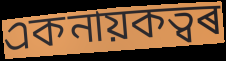
একনায়কত্বৰ